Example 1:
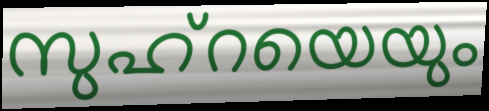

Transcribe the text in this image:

സുഹ്റയെയും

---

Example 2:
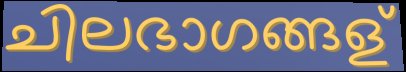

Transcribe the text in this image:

ചിലഭാഗങ്ങള്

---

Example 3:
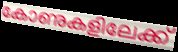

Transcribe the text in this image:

കോണുകളിലേക്ക്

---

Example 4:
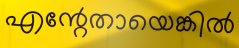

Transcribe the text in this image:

എന്റേതായെങ്കിൽ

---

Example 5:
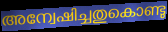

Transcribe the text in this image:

അന്വേഷിച്ചതുകൊണ്ടു